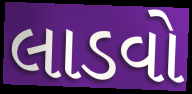
લાડવો